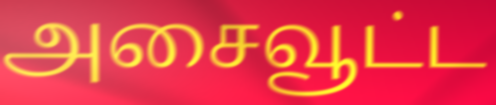
அசைவூட்ட